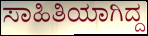
ಸಾಹಿತಿಯಾಗಿದ್ದ